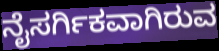
ನೈಸರ್ಗಿಕವಾಗಿರುವ